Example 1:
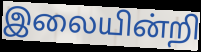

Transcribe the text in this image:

இலையின்றி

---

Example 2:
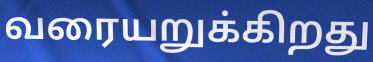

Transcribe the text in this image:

வரையறுக்கிறது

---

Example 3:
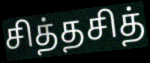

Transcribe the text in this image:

சித்தசித்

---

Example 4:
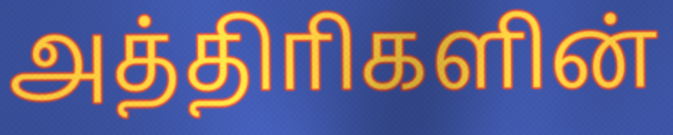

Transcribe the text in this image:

அத்திரிகளின்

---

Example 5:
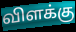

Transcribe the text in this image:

விளக்கு